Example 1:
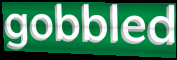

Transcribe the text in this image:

gobbled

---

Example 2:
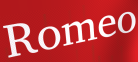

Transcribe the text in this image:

Romeo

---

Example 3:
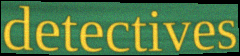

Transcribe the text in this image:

detectives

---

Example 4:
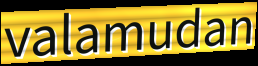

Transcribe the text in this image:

valamudan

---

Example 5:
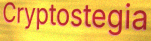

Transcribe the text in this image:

Cryptostegia